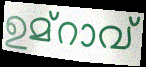
ഉമ്റാവ്